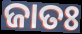
ଜାତଃ